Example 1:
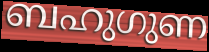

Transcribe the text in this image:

ബഹുഗുണ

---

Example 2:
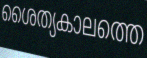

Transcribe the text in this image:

ശൈത്യകാലത്തെ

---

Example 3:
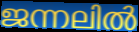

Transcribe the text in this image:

ജന്നലിൽ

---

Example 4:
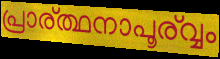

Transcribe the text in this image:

പ്രാര്ത്ഥനാപൂര്വ്വം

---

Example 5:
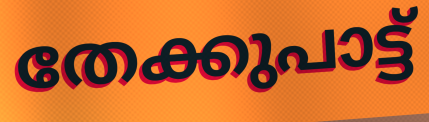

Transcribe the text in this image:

തേക്കുപാട്ട്